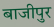
बाजीपुर